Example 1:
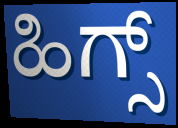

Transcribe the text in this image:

ಹಿಗ್ಸ್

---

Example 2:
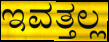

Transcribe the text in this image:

ಇವತ್ತಲ್ಲ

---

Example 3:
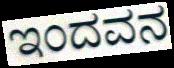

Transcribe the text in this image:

ಇಂದವನ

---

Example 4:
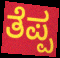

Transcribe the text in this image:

ತೆಪ್ಪ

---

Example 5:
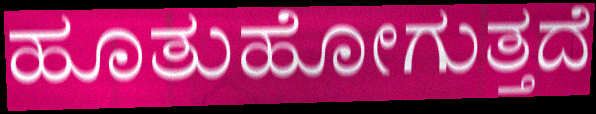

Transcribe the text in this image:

ಹೂತುಹೋಗುತ್ತದೆ